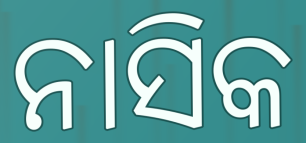
ନାସିକ